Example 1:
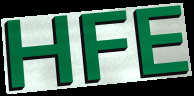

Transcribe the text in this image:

HFE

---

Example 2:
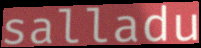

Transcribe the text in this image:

salladu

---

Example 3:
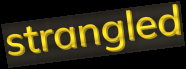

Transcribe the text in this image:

strangled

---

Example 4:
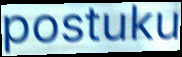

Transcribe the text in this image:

postuku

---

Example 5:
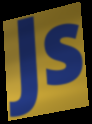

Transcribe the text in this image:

Js